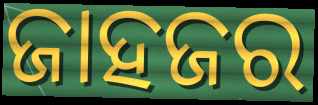
ଜାହଜର